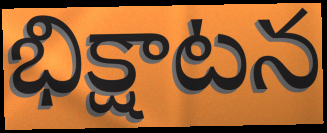
భిక్షాటన